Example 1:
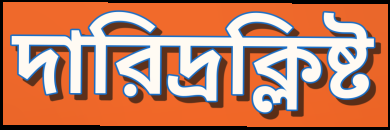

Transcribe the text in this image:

দারিদ্রক্লিষ্ট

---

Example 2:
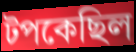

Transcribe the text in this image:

টপকেছিল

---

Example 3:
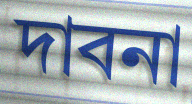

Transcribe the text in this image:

দাবনা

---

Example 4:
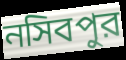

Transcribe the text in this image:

নসিবপুর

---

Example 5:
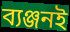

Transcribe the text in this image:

ব্যঞ্জনই